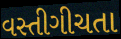
વસ્તીગીચતા